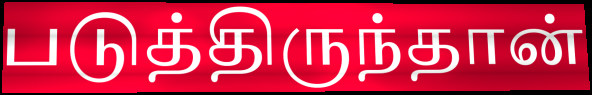
படுத்திருந்தான்